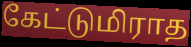
கேட்டுமிராத